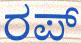
ರಪ್